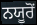
ਨਯੂਰੋਂ